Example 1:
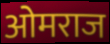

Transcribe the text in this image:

ओमराज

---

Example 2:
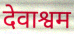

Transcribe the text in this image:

देवाश्वम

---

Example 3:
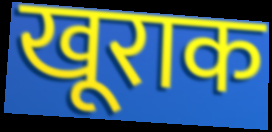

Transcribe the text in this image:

खूराक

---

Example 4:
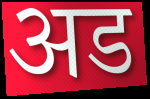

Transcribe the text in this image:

अड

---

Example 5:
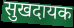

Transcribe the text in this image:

सुखदायक